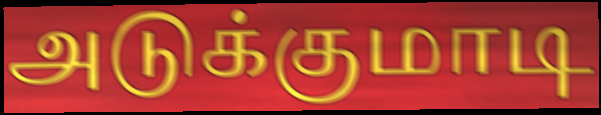
அடுக்குமாடி